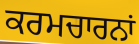
ਕਰਮਚਾਰਨਾਂ